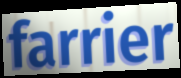
farrier